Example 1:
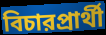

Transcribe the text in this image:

বিচারপ্রার্থী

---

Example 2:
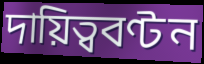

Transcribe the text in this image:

দায়িত্ববণ্টন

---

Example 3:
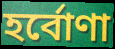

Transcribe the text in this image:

হর্বোণা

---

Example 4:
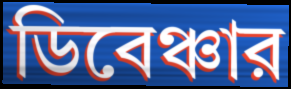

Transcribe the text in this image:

ডিবেঞ্চার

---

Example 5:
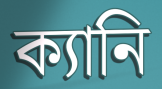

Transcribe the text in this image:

ক্যানি